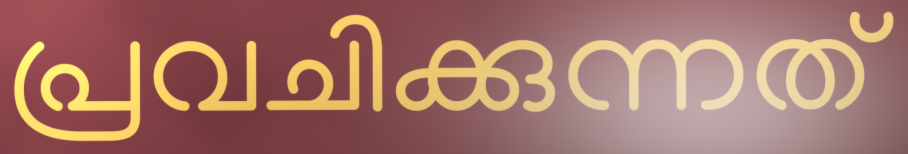
പ്രവചിക്കുന്നത്